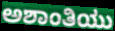
ಅಶಾಂತಿಯು